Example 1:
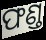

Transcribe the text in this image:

ଫଣ୍ଡ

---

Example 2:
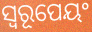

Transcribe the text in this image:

ସ୍ୱରୂପେୟଂ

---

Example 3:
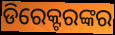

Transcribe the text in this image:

ଡିରେକ୍ଟରଙ୍କର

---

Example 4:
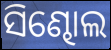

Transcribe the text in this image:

ସିଣ୍ଢୋଲ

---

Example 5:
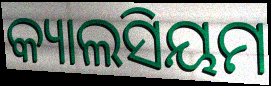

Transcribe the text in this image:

କ୍ୟାଲସିୟମ